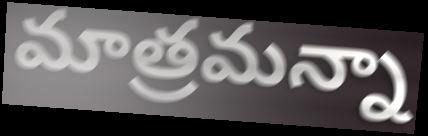
మాత్రమన్నా